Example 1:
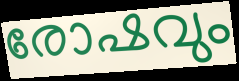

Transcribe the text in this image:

രോഷവും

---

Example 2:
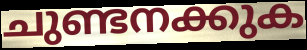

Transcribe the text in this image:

ചുണ്ടനക്കുക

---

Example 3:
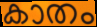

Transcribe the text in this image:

കാതം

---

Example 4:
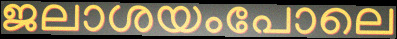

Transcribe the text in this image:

ജലാശയംപോലെ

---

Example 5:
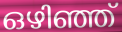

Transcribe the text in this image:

ഒഴിഞ്ഞ്